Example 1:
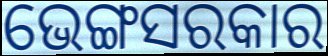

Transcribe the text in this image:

ଭେଙ୍ଗସରକାର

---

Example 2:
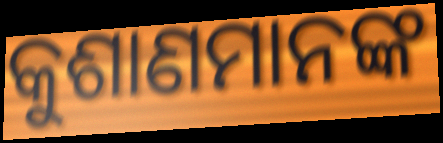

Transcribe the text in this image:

କୁଶାଣମାନଙ୍କ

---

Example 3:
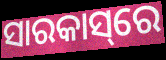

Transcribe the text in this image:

ସାରକାସ୍‌ରେ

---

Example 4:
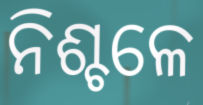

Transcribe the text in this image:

ନିଶ୍ଚଳେ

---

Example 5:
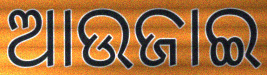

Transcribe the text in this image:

ଆଉଜାଇ